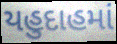
યહુદાહમાં